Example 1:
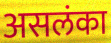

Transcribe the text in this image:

असलंका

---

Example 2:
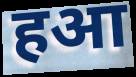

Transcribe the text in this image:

हआ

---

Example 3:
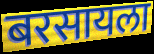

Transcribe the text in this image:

बरसायला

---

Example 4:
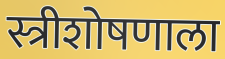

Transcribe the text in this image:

स्त्रीशोषणाला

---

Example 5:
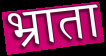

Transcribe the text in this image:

भ्राता